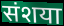
संशया